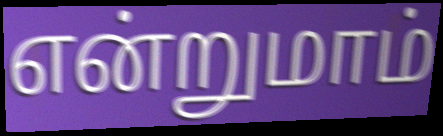
என்றுமாம்